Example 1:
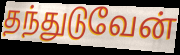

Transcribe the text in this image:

தந்துடுவேன்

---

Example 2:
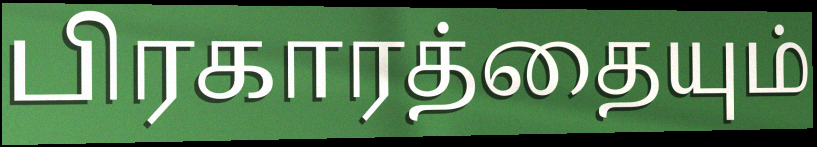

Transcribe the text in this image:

பிரகாரத்தையும்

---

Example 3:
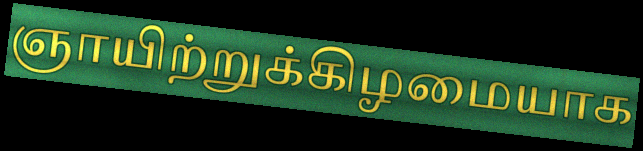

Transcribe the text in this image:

ஞாயிற்றுக்கிழமையாக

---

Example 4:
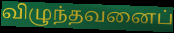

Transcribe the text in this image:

விழுந்தவனைப்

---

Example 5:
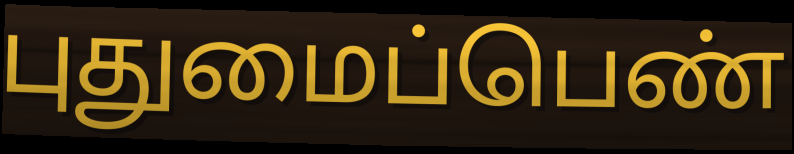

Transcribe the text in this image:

புதுமைப்பெண்